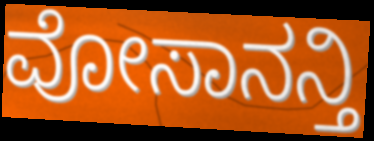
ವೋಸಾನನ್ತಿ